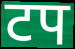
टप